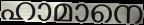
ഹാമാനെ